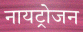
नायट्रोजन